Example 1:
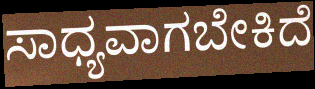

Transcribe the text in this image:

ಸಾಧ್ಯವಾಗಬೇಕಿದೆ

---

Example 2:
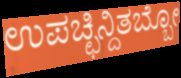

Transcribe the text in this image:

ಉಪಚ್ಛಿನ್ದಿತಬ್ಬೋ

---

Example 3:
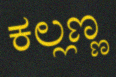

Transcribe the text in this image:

ಕಲ್ಲಣ್ಣ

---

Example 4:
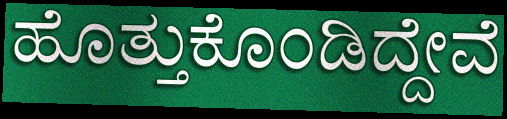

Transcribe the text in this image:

ಹೊತ್ತುಕೊಂಡಿದ್ದೇವೆ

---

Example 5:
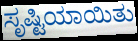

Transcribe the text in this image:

ಸೃಷ್ಟಿಯಾಯಿತು